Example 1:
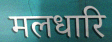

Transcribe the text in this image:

मलधारि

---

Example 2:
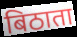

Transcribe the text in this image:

बिठाता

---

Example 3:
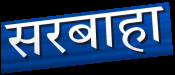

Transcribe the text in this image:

सरबाहा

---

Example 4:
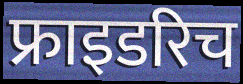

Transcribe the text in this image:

फ्राइडरिच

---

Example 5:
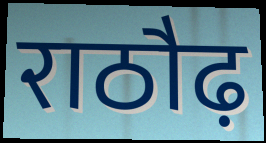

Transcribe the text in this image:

राठौढ़